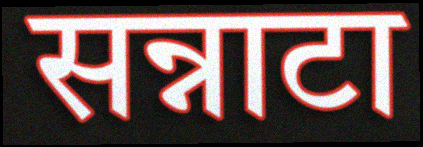
सन्नाटा